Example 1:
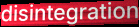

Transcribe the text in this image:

disintegration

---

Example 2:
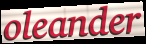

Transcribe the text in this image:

oleander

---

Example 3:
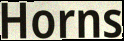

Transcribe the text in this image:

Horns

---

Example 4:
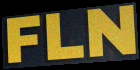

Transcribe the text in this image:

FLN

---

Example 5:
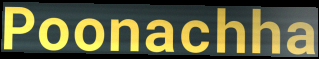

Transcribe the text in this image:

Poonachha